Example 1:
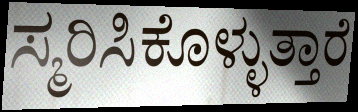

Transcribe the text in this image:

ಸ್ಮರಿಸಿಕೊಳ್ಳುತ್ತಾರೆ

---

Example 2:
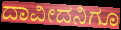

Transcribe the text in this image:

ದಾವೀದನಿಗೂ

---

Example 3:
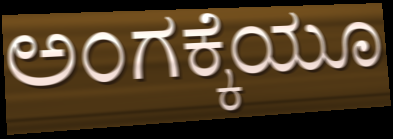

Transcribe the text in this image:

ಅಂಗಕ್ಕೆಯೂ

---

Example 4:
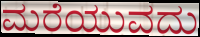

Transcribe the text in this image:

ಮರೆಯುವದು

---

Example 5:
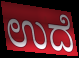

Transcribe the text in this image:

ಉದೆ